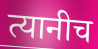
त्यानीच